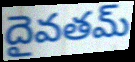
దైవతమ్